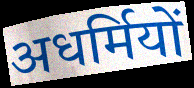
अधर्मियों